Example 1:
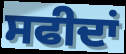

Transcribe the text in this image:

ਸਫੀਦਾਂ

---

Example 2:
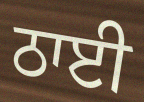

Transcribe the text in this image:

ਠਾਈ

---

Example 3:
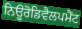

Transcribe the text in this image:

ਨਿਊਰੋਡਿਵੈਲਪਮੈਂਟ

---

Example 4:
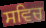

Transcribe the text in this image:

ਸਵਿਚ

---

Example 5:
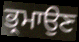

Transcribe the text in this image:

ਭ੍ਰਮਾਉਣ